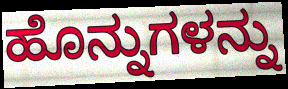
ಹೊನ್ನುಗಳನ್ನು